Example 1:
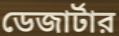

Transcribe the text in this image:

ডেজার্টার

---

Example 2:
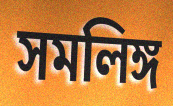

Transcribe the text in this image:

সমলিঙ্গ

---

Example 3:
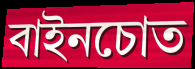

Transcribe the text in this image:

বাইনচোত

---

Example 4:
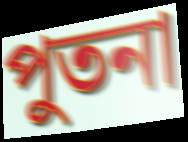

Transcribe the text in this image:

পুতনা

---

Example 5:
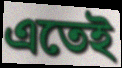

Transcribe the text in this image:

এতেই